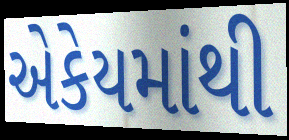
એકેયમાંથી